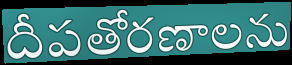
దీపతోరణాలను